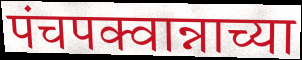
पंचपक्वान्नाच्या